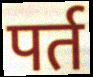
पर्त